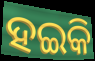
ହଇକି